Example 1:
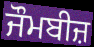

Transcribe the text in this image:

ਜੌਮਬੀਜ਼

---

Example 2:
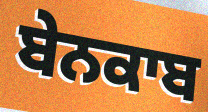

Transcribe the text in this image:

ਬੇਨਕਾਬ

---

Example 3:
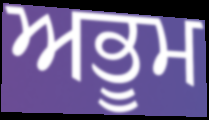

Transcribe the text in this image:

ਅਭੂਮ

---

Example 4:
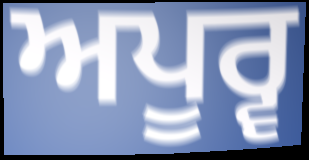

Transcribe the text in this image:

ਅਪੂਰ੍ਵ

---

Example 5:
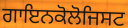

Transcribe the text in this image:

ਗਾਇਨਕੋਲੋਜਿਸਟ